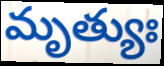
మృత్యుః